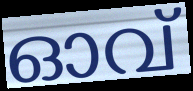
ഓവ്